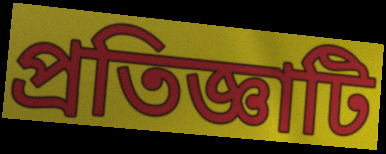
প্রতিজ্ঞাটি